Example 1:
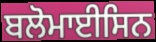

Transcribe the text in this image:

ਬਲੋਮਾਈਸਿਨ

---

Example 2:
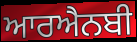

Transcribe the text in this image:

ਆਰਐਨਬੀ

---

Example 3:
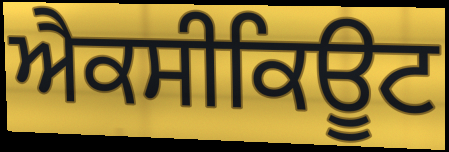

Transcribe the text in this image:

ਐਕਸੀਕਿਊਟ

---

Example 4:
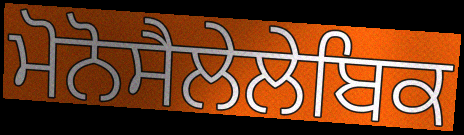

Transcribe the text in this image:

ਮੋਨੋਸੈਲੇਲੇਬਿਕ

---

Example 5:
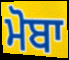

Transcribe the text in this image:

ਮੋਬਾ